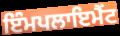
ਇੰਮਪਲਾਇਮੈਂਟ